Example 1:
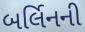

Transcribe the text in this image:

બર્લિનની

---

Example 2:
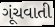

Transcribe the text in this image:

ગૂંચવાતી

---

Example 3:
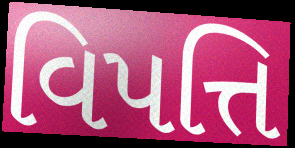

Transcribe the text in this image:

વિપત્તિ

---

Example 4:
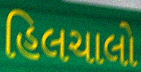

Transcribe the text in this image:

હિલચાલો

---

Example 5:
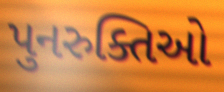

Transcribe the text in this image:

પુનરુક્તિઓ